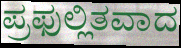
ಪ್ರಫುಲ್ಲಿತವಾದ